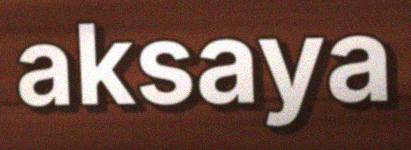
aksaya